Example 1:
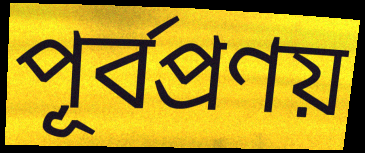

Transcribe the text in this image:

পূর্বপ্রণয়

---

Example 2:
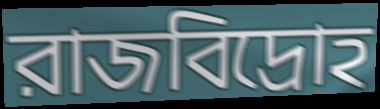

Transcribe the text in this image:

রাজবিদ্রোহ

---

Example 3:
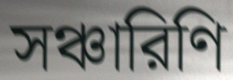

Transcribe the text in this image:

সঞ্চারিণি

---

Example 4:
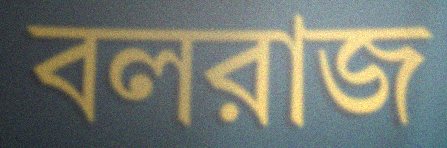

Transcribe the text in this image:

বলরাজ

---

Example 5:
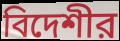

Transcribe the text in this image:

বিদেশীর